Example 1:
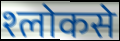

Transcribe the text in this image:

श्लोकसे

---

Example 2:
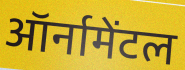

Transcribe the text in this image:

ऑर्नामेंटल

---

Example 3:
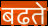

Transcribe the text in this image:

बढते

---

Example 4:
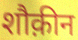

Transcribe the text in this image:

शौक़ीन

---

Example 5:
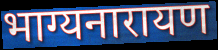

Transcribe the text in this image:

भाग्यनारायण